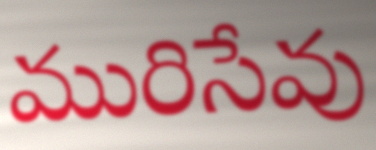
మురిసేవు